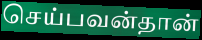
செய்பவன்தான்